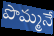
పొమ్మనే